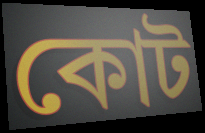
কোট